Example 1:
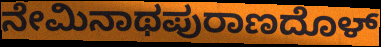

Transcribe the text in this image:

ನೇಮಿನಾಥಪುರಾಣದೊಳ್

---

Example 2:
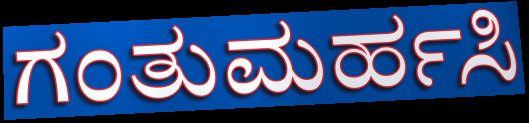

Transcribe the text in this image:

ಗಂತುಮರ್ಹಸಿ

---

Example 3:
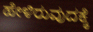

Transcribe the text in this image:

ಹೇಳಿರುವುದಕ್ಕೆ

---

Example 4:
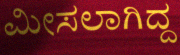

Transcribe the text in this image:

ಮೀಸಲಾಗಿದ್ದ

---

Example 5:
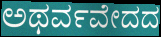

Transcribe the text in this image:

ಅಥರ್ವವೇದದ